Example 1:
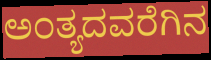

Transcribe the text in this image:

ಅಂತ್ಯದವರೆಗಿನ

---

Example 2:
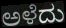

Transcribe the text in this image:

ಅಳೆದು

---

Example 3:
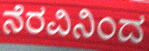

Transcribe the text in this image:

ನೆರವಿನಿಂದ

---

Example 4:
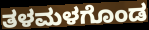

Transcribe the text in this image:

ತಳಮಳಗೊಂಡ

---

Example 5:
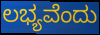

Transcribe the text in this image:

ಲಭ್ಯವೆಂದು